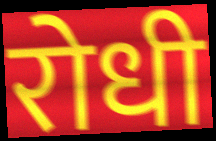
रोधी